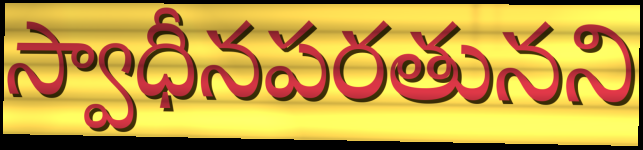
స్వాధీనపరతునని